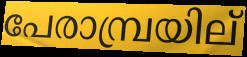
പേരാമ്പ്രയില്